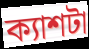
ক্যাশটা